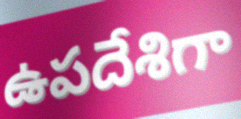
ఉపదేశిగా